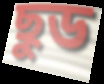
ছুড